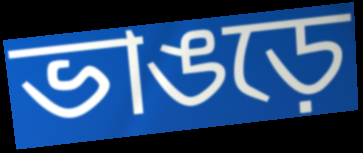
ভাঙড়ে